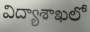
విద్యాశాఖలో